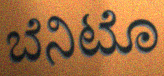
ಬೆನಿಟೊ